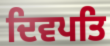
ਦਿਵਪਤਿ